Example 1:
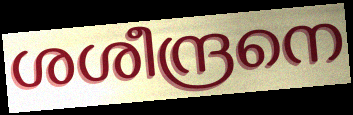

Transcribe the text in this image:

ശശീന്ദ്രനെ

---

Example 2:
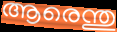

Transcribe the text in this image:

ആരെന്തു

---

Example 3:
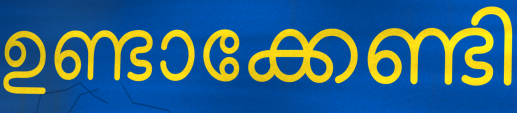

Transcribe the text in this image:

ഉണ്ടാക്കേണ്ടി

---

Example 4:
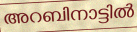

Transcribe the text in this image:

അറബിനാട്ടിൽ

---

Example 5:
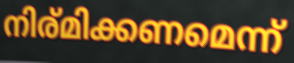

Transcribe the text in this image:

നിര്മിക്കണമെന്ന്